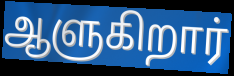
ஆளுகிறார்